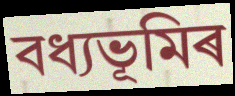
বধ্যভূমিৰ